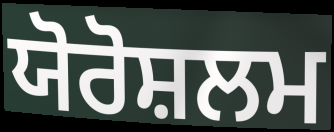
ਯੋਰੋਸ਼ਲਮ